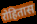
रोहितास